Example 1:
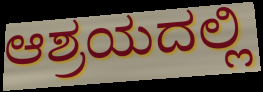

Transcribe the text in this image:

ಆಶ್ರಯದಲ್ಲಿ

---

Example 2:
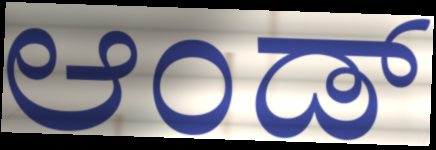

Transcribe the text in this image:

ಆಂಡ್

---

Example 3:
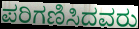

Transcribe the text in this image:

ಪರಿಗಣಿಸಿದವರು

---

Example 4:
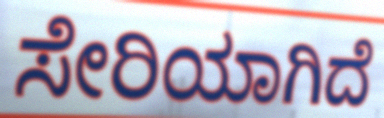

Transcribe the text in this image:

ಸೇರಿಯಾಗಿದೆ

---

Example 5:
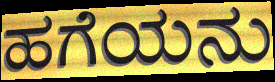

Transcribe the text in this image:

ಹಗೆಯನು